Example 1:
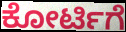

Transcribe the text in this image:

ಕೋರ್ಟಿಗೆ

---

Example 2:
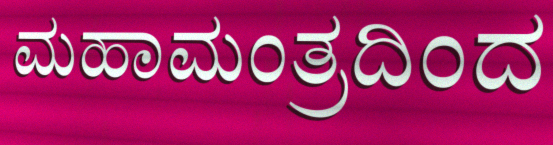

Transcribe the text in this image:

ಮಹಾಮಂತ್ರದಿಂದ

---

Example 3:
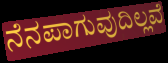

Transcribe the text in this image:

ನೆನಪಾಗುವುದಿಲ್ಲವೆ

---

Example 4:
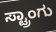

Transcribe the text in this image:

ಸ್ಟ್ರಾಂಗು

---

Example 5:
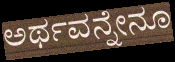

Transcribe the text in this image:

ಅರ್ಥವನ್ನೇನೂ